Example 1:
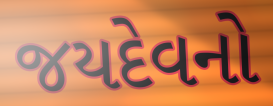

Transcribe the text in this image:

જયદેવનો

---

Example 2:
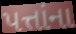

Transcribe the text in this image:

પત્તાંના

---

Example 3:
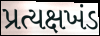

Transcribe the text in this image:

પ્રત્યક્ષખંડ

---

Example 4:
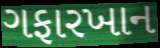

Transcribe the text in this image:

ગફારખાન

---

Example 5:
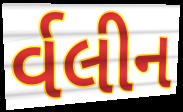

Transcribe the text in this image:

ર્વલીન